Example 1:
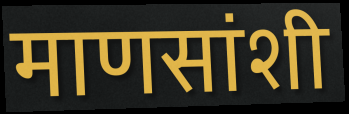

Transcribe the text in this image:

माणसांशी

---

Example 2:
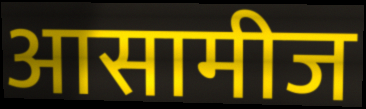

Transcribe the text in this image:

आसामीज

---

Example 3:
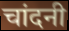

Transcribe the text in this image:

चांदनी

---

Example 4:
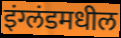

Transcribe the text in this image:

इंग्लंडमधील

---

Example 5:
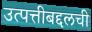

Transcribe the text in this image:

उत्पत्तीबद्दलची